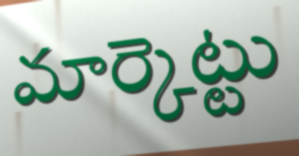
మార్కెట్టు